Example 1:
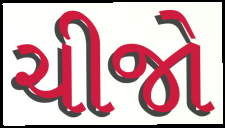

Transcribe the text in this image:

ચીજો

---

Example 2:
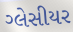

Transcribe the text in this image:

ગ્લેસીયર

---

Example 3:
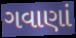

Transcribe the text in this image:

ગવાણાં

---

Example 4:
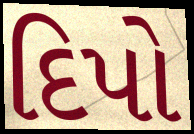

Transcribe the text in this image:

દિપો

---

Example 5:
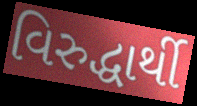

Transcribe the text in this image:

વિરુદ્ધાર્થી